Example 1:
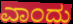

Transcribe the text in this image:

ಎಾಂದು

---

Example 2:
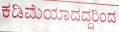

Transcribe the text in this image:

ಕಡಿಮೆಯಾದದ್ದರಿಂದ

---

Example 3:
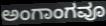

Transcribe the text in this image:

ಅಂಗಾಂಗವೂ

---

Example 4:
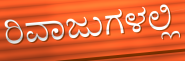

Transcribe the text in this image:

ರಿವಾಜುಗಳಲ್ಲಿ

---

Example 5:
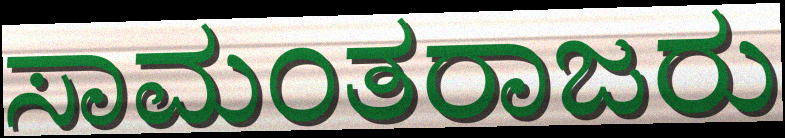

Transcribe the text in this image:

ಸಾಮಂತರಾಜರು